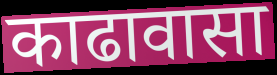
काढावासा